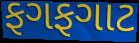
ફગફગાટ